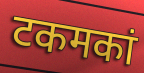
टकमकां